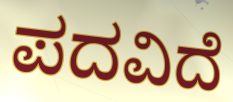
ಪದವಿದೆ